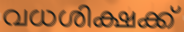
വധശിക്ഷക്ക്